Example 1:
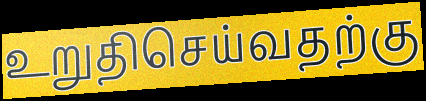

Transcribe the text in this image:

உறுதிசெய்வதற்கு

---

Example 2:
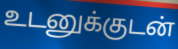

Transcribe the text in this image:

உடனுக்குடன்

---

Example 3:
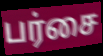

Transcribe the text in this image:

பர்சை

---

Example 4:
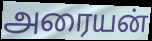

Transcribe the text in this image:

அரையன்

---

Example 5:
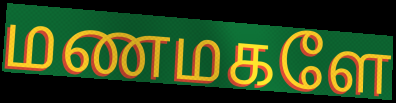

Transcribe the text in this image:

மணமகளே